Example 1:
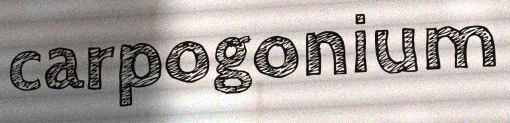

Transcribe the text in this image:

carpogonium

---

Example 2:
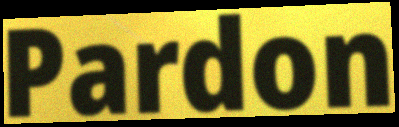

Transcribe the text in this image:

Pardon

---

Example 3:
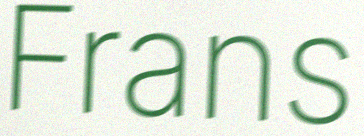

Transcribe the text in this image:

Frans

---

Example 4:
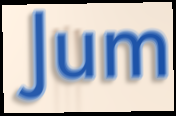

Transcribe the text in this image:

Jum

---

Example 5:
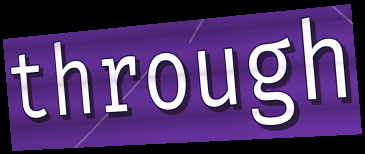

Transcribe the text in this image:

through